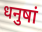
धनुषां